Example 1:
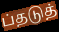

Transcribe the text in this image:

ப்தடுத்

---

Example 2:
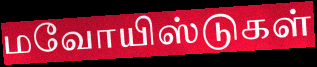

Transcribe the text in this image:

மவோயிஸ்டுகள்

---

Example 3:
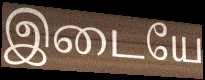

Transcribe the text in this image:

இடையே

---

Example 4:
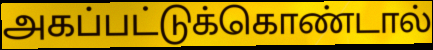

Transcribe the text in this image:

அகப்பட்டுக்கொண்டால்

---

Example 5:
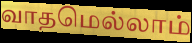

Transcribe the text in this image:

வாதமெல்லாம்